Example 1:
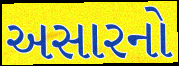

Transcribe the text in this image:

અસારનો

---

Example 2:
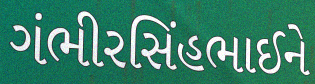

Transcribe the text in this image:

ગંભીરસિંહભાઈને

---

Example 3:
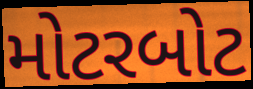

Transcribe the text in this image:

મોટરબોટ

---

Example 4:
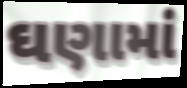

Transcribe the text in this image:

ઘણામાં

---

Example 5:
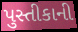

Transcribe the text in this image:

પુસ્તીકાની